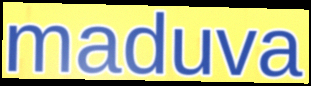
maduva